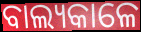
ବାଲ୍ୟକାଳେ